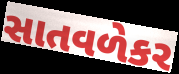
સાતવળેકર